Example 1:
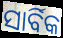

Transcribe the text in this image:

ସାର୍ବିକ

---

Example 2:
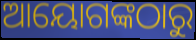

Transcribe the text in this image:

ଆୟୋଗଙ୍କଠାରୁ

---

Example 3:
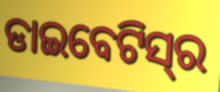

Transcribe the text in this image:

ଡାଇବେଟିସ୍‌ର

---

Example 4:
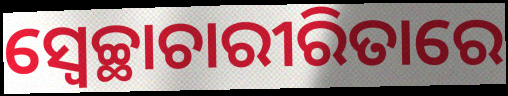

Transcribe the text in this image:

ସ୍ଵେଚ୍ଛାଚାରୀରିତାରେ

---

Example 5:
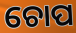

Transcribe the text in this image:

ଚୋପ